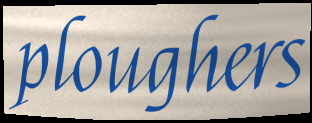
ploughers